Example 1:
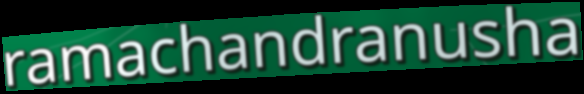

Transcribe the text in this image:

ramachandranusha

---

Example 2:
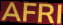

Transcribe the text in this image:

AFRI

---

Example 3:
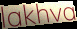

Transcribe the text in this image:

lakhva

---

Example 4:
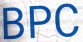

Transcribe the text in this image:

BPC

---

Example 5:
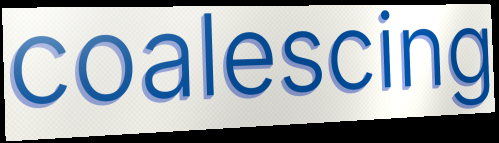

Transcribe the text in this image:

coalescing